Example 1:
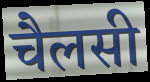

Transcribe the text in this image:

चैलसी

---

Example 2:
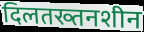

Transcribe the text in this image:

दिलतख्तनशीन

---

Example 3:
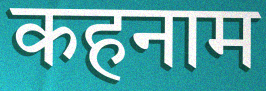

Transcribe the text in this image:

कहनाम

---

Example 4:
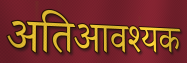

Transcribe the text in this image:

अतिआवश्यक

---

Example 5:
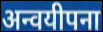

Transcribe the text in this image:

अन्वयीपना